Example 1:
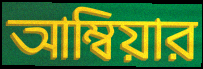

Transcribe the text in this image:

আম্বিয়ার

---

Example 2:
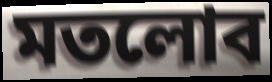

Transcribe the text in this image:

মতলোব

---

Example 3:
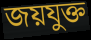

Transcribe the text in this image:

জয়যুক্ত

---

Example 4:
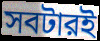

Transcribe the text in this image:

সবটারই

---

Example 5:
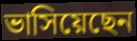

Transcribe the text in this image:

ভাসিয়েছেন